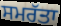
ਸਮਰੱਤਾ